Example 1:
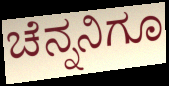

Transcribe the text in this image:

ಚೆನ್ನನಿಗೂ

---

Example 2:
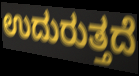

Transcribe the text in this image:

ಉದುರುತ್ತದೆ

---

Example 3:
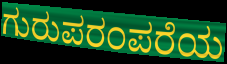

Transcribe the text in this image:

ಗುರುಪರಂಪರೆಯ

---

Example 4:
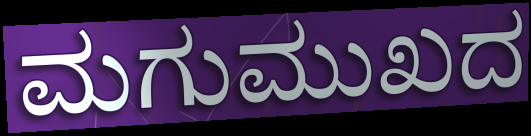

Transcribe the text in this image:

ಮಗುಮುಖದ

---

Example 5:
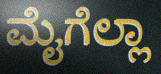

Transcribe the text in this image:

ಮೈಗೆಲ್ಲಾ